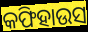
କଫିହାଉସ